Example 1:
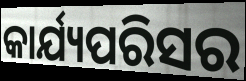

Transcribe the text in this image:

କାର୍ଯ୍ୟପରିସର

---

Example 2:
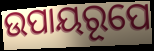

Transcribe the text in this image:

ଉପାୟରୂପେ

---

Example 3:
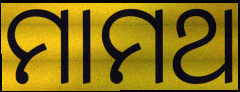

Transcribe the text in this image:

ମାମଥ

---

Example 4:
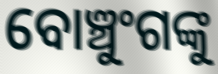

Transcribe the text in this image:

ବୋଞ୍ଚୁଂଗଙ୍କୁ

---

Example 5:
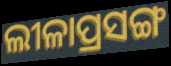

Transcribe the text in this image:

ଲୀଳାପ୍ରସଙ୍ଗ